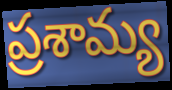
ప్రశామ్య